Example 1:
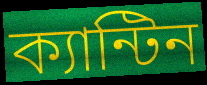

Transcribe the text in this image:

ক্যান্টিন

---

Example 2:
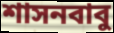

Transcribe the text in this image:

শাসনবাবু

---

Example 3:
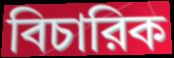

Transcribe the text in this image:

বিচারিক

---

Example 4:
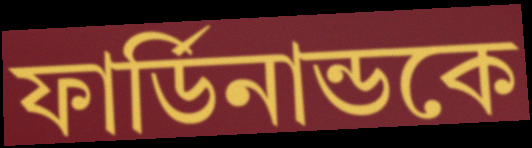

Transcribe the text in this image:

ফার্ডিনান্ডকে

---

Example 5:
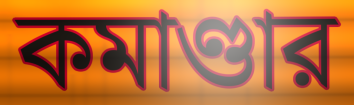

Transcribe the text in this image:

কমাণ্ডার